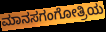
ಮಾನಸಗಂಗೋತ್ರಿಯ